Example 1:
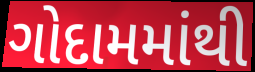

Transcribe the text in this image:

ગોદામમાંથી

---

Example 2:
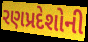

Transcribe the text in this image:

રણપ્રદેશોની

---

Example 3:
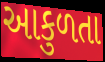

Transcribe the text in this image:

આકુળતા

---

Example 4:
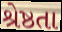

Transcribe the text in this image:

શ્રેષ્ઠતા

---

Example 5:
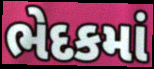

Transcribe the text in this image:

ભેદકમાં